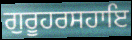
ਗੁਰੂਹਰਸਹਾਇ